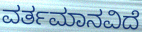
ವರ್ತಮಾನವಿದೆ